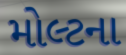
મોલ્ટના